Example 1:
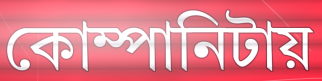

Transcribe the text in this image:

কোম্পানিটায়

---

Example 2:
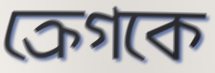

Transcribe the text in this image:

ক্রেগকে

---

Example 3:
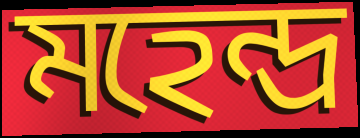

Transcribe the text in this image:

মহেন্দ্র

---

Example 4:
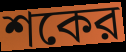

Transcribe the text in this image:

শকের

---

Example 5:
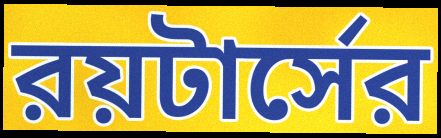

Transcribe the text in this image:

রয়টার্সের